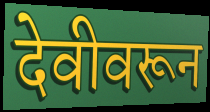
देवीवरून